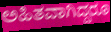
ಅಹಿತವಾಗಿದ್ದರೂ